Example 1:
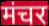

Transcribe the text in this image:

मंचर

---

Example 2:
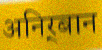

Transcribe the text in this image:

अनिर्बान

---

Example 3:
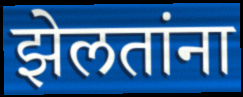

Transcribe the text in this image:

झेलतांना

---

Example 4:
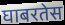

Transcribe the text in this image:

घाबरतेस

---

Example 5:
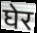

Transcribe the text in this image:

घेर